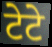
टेटे